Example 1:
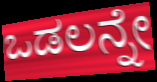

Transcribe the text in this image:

ಒಡಲನ್ನೇ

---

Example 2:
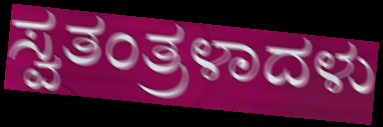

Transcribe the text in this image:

ಸ್ವತಂತ್ರಳಾದಳು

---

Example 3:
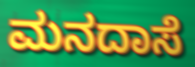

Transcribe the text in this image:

ಮನದಾಸೆ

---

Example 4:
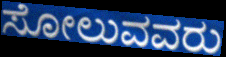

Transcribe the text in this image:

ಸೋಲುವವರು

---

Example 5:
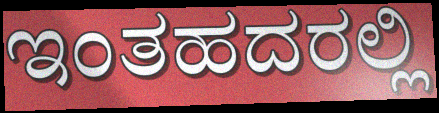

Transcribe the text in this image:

ಇಂತಹದರಲ್ಲಿ